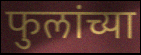
फुलांच्या